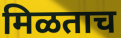
मिळताच